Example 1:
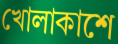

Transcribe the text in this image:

খোলাকাশে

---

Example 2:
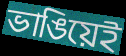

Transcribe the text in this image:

ভাঙিয়েই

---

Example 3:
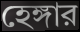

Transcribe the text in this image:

হেঙ্গার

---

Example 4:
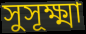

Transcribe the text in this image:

সুসূক্ষ্মা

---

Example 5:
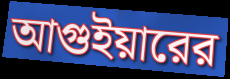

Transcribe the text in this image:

আগুইয়ারের